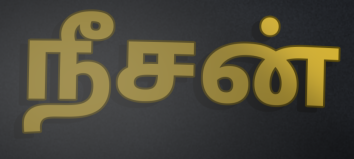
நீசன்